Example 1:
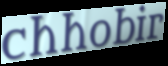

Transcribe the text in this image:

chhobir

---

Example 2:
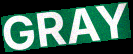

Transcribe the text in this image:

GRAY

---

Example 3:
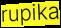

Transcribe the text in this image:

rupika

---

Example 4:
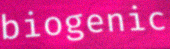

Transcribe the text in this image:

biogenic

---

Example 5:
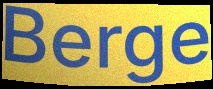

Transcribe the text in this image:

Berge